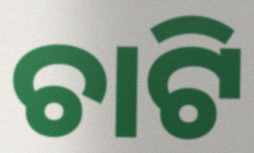
ଚାଟି